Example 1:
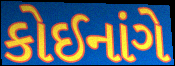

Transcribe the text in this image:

કોઈનાંગે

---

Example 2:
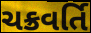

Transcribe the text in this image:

ચક્રવર્તિ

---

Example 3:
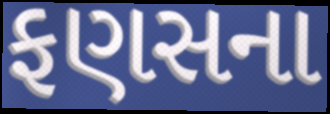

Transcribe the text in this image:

ફણસના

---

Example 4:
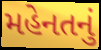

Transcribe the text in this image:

મહેનતનું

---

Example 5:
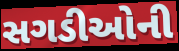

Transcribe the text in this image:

સગડીઓની